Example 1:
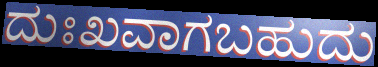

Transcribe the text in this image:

ದುಃಖವಾಗಬಹುದು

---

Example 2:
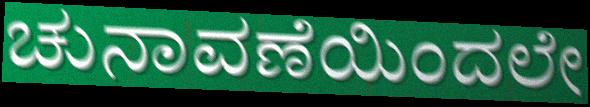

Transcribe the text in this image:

ಚುನಾವಣೆಯಿಂದಲೇ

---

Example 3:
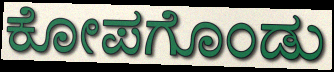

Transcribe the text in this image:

ಕೋಪಗೊಂಡು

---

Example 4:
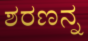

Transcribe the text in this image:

ಶರಣನ್ನ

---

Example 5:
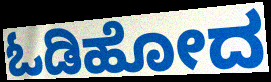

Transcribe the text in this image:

ಓಡಿಹೋದ